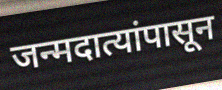
जन्मदात्यांपासून